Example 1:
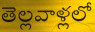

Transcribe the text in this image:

తెల్లవాళ్లలో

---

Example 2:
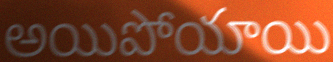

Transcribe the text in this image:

అయిపోయాయి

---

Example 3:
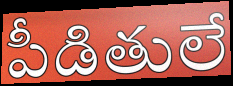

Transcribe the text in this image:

పీడితులే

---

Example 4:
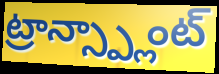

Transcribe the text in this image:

ట్రాన్స్ప్లాంట్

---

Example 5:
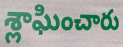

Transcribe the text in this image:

శ్లాఘించారు